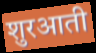
शुरआती